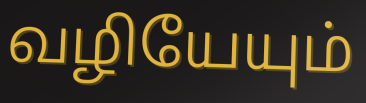
வழியேயும்